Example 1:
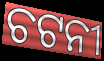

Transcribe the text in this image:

ଚଟନୀ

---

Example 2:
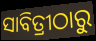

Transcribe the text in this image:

ସାବିତ୍ରୀଠାରୁ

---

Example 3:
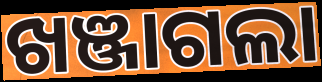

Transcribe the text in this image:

ଖଞ୍ଜାଗଲା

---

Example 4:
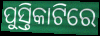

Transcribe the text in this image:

ପୁସ୍ତିକାଟିରେ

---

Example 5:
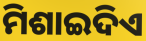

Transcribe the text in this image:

ମିଶାଇଦିଏ